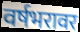
वर्षभरावर